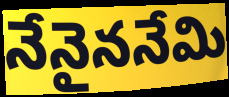
నేనైననేమి